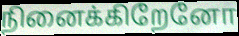
நினைக்கிறேனோ